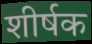
शीर्षक